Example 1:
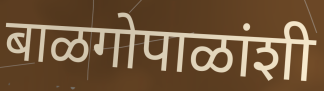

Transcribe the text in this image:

बाळगोपाळांशी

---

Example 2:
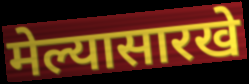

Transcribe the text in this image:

मेल्यासारखे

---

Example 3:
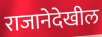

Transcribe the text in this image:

राजानेदेखील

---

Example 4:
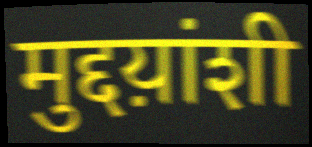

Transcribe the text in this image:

मुद्दय़ांशी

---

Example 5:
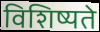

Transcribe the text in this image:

विशिष्यते